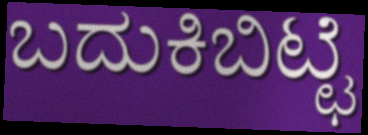
ಬದುಕಿಬಿಟ್ಟೆ